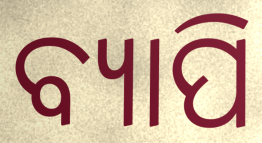
ବ୍ଯାପି